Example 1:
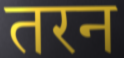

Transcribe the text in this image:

तरन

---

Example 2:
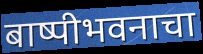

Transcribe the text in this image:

बाष्पीभवनाचा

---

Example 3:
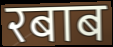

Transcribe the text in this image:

रबाब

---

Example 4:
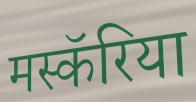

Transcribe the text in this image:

मस्कॅरिया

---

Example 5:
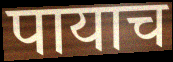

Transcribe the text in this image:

पायाच